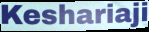
Keshariaji